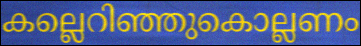
കല്ലെറിഞ്ഞുകൊല്ലണം